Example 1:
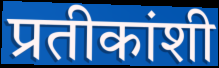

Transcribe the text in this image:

प्रतीकांशी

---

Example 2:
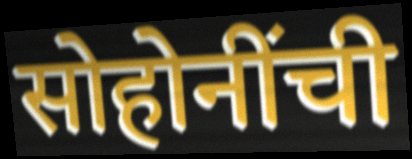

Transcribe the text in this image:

सोहोनींची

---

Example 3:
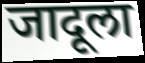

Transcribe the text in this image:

जादूला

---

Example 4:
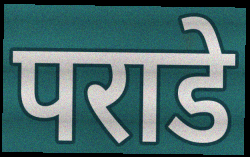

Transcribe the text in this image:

पराडे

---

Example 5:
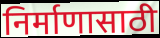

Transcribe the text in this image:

निर्माणासाठी